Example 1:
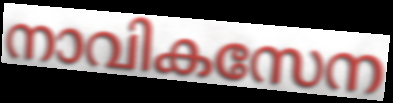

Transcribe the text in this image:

നാവികസേന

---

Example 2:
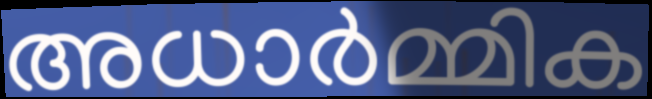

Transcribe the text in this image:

അധാർമ്മിക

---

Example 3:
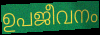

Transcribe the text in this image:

ഉപജീവനം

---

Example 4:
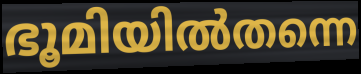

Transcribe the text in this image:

ഭൂമിയിൽതന്നെ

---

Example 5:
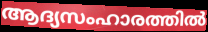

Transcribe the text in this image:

ആദ്യസംഹാരത്തിൽ